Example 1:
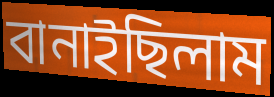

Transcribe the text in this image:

বানাইছিলাম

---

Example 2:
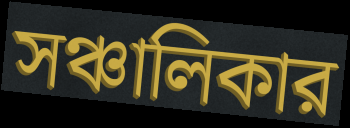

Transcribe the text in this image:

সঞ্চালিকার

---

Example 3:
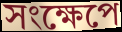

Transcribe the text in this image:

সংক্ষেপে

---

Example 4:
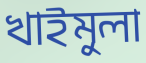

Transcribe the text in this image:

খাইমুলা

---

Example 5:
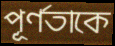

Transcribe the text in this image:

পূর্ণতাকে